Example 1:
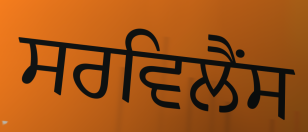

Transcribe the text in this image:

ਸਰਵਿਲੈਂਸ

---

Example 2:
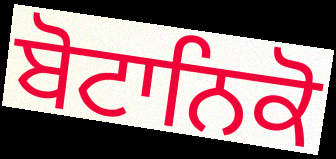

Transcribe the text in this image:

ਬੋਟਾਨਿਕੋ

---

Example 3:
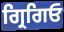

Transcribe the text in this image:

ਗ੍ਰਿਗਿਓ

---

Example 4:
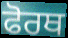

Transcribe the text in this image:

ਫੋਰਥ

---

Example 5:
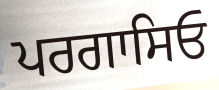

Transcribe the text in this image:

ਪਰਗਾਸਿਓ